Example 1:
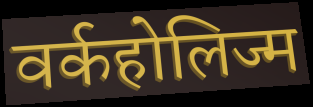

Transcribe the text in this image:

वर्कहोलिज्म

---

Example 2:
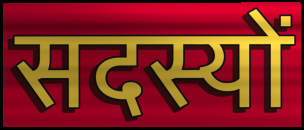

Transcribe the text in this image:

सदस्यों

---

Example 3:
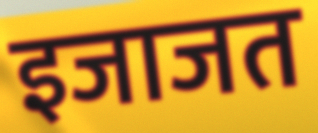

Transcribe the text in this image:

इजाजत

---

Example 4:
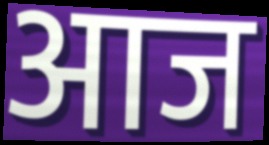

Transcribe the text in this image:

आज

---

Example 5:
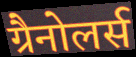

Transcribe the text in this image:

ग्रैनोलर्स